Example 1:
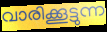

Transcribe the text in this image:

വാരിക്കൂട്ടുന്ന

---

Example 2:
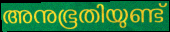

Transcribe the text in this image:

അനുഭൂതിയുണ്ട്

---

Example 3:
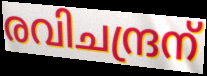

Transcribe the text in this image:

രവിചന്ദ്രന്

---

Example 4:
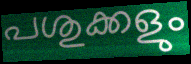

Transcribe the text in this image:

പശുക്കളും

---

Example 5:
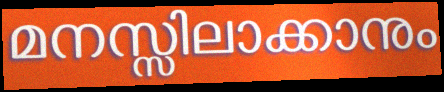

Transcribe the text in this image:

മനസ്സിലാക്കാനും